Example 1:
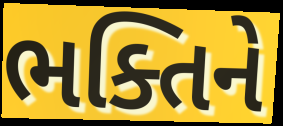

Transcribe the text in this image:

ભક્તિને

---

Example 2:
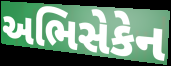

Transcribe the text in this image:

અભિસેકેન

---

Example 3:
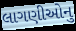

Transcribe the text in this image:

લાગણીઓનુ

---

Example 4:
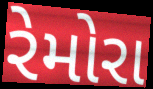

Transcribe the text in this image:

રેમોરા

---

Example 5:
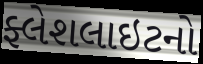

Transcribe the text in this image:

ફ્લેશલાઇટનો